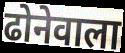
ढोनेवाला